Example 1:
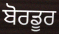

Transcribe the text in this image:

ਬੋਰਡੂਰ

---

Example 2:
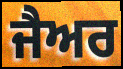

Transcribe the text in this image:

ਜੈਅਰ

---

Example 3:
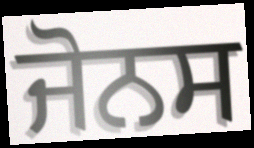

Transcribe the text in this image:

ਜੋਨਸ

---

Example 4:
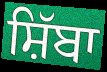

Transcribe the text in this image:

ਸ਼ਿੱਬਾ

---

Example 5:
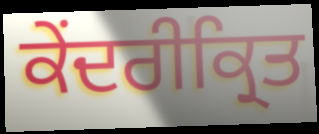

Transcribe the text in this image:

ਕੇਂਦਰੀਕ੍ਰਿਤ